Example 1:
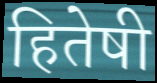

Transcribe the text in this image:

हितेषी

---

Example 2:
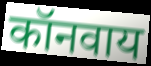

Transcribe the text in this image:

कॉनवाय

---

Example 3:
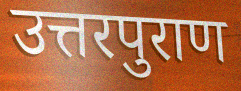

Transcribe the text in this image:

उत्तरपुराण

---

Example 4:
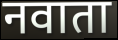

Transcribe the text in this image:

नवाता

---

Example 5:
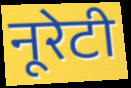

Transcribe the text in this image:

नूरेटी